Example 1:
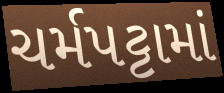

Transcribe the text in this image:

ચર્મપટ્ટામાં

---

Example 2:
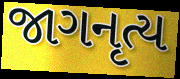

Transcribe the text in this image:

જાગનૃત્ય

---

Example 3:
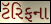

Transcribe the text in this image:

ટૅરિફના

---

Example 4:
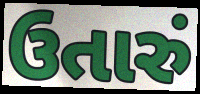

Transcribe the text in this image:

ઉતારું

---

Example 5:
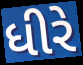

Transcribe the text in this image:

ધીરે